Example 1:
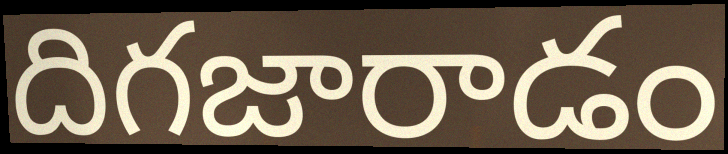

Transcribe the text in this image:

దిగజారాడం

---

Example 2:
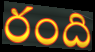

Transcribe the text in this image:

రంది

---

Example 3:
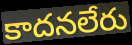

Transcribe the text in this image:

కాదనలేరు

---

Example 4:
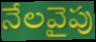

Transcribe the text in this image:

నేలవైపు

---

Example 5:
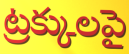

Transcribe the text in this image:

ట్రక్కులపై